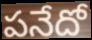
పనేదో